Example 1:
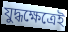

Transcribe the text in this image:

যুদ্ধক্ষেত্রেই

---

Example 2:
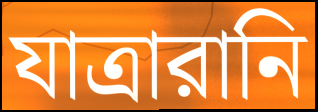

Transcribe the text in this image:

যাত্রারানি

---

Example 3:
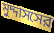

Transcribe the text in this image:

মুদ্দাসসের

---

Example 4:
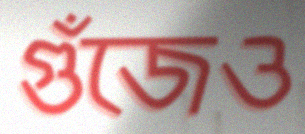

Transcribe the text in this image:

গুঁজেও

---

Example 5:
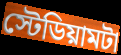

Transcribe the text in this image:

স্টেডিয়ামটা